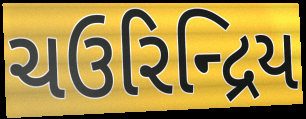
ચઉરિન્દ્રિય